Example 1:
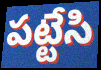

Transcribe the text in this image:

పట్టేసి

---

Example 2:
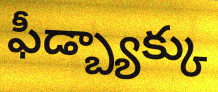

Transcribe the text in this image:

ఫీడ్బ్యాక్కు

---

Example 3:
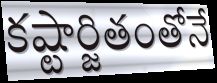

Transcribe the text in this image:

కష్టార్జితంతోనే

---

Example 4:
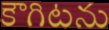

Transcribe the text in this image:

కౌగిటను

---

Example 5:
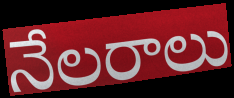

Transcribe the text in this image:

నేలరాలు